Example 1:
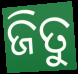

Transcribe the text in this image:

ଜିତୁ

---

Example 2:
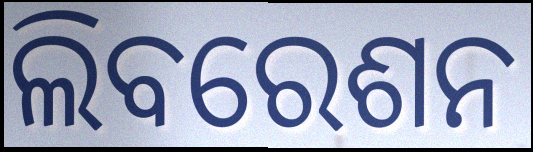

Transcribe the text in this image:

ଲିବରେଶନ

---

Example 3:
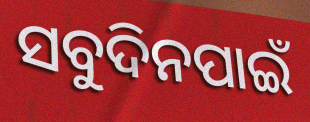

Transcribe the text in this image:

ସବୁଦିନପାଇଁ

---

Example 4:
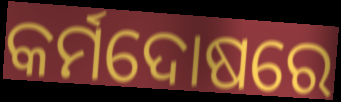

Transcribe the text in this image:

କର୍ମଦୋଷରେ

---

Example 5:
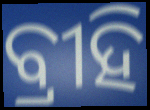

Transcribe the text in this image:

ବ୍ରୀହି